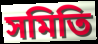
সমিতি